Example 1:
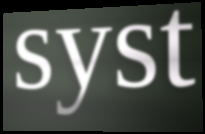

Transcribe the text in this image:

syst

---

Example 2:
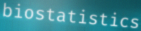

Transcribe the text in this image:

biostatistics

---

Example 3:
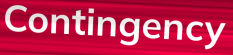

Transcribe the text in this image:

Contingency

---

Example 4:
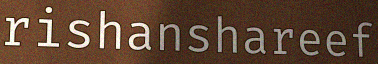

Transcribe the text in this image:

rishanshareef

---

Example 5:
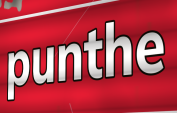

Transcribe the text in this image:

punthe